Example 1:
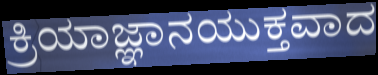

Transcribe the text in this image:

ಕ್ರಿಯಾಜ್ಞಾನಯುಕ್ತವಾದ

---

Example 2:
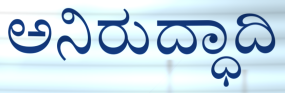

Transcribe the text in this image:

ಅನಿರುದ್ಧಾದಿ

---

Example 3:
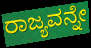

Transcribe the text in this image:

ರಾಜ್ಯವನ್ನೇ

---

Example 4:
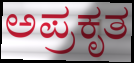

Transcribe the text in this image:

ಅಪ್ರಕೃತ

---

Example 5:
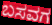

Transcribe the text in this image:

ಬಸವಗ